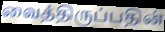
வைத்திருப்பதின்